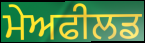
ਮੇਅਫੀਲਡ